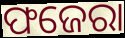
ଫଜେରା